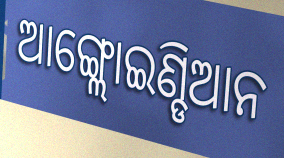
ଆଙ୍ଗ୍ଲୋଇଣ୍ଡିଆନ